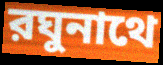
রঘুনাথে